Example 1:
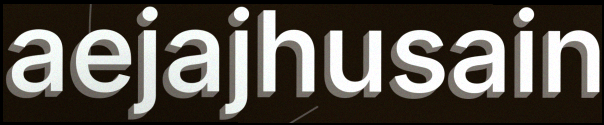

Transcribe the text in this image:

aejajhusain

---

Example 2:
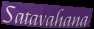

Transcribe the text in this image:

Satavahana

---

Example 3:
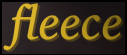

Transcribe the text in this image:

fleece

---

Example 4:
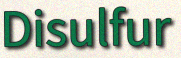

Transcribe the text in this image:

Disulfur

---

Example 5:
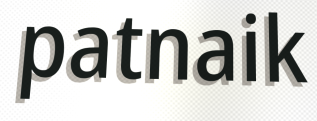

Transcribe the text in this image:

patnaik